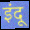
इंदू